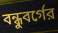
বন্ধুবর্গের